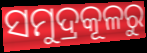
ସମୁଦ୍ରକୂଳରୁ